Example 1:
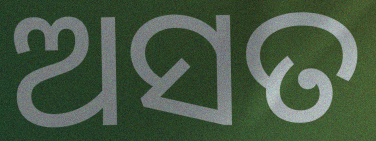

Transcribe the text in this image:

ଅସତ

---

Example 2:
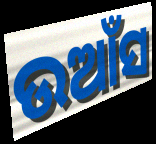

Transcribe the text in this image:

ଉଆଁସ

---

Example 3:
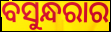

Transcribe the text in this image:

ବସୁନ୍ଧରାର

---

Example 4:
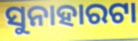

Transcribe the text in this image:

ସୁନାହାରଟା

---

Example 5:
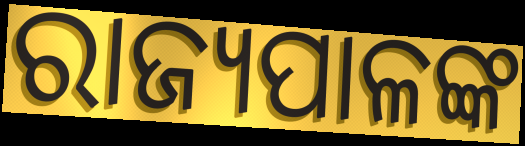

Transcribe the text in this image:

ରାଜ୍ୟପାଳଙ୍କ